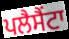
ਪਲੈਸੈਂਟਾ